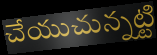
చేయుచున్నట్టి